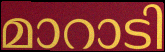
മാറാടി